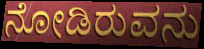
ನೋಡಿರುವನು